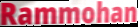
Rammohan